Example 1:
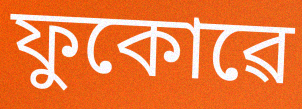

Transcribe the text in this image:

ফুকোৱে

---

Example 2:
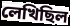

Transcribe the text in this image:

লেখিছিল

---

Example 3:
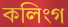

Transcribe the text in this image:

কলিংগ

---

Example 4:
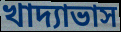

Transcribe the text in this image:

খাদ্যাভাস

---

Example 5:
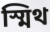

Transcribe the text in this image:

স্মিথ